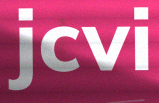
jcvi